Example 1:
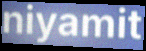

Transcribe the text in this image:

niyamit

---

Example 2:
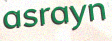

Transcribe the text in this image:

asrayn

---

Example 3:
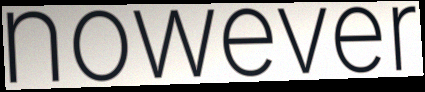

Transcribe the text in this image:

nowever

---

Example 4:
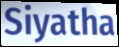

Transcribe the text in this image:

Siyatha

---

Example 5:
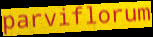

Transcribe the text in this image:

parviflorum